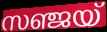
സഞ്ജയ്